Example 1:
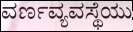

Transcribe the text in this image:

ವರ್ಣವ್ಯವಸ್ಥೆಯು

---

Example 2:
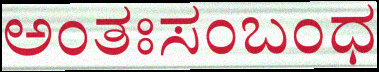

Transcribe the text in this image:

ಅಂತಃಸಂಬಂಧ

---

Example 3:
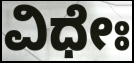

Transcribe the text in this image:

ವಿಧೇಃ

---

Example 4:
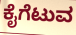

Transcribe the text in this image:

ಕೈಗೆಟುವ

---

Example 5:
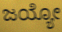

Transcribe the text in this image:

ಜಯ್ಯೋ